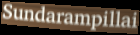
Sundarampillai